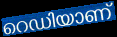
റെഡിയാണ്